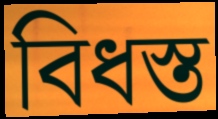
বিধস্ত